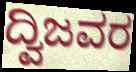
ದ್ವಿಜವರ